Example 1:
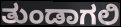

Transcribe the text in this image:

ತುಂಡಾಗಲಿ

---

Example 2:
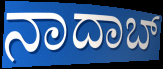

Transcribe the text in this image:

ನಾದಾಬ್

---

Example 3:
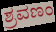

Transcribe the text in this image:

ಶ್ರವಣಂ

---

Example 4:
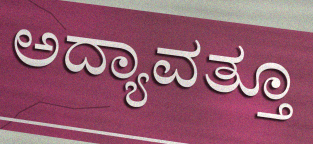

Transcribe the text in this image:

ಅದ್ಯಾವತ್ತೂ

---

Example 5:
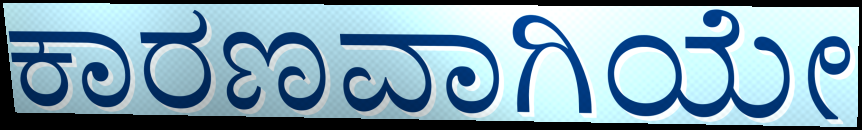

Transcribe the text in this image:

ಕಾರಣವಾಗಿಯೇ